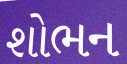
શોભન